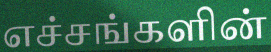
எச்சங்களின்